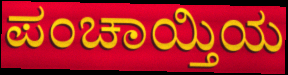
ಪಂಚಾಯ್ತಿಯ